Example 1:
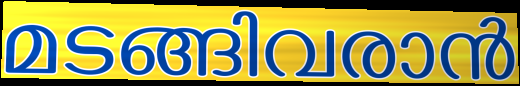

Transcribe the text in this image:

മടങ്ങിവരാൻ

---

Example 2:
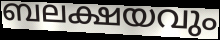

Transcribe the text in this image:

ബലക്ഷയവും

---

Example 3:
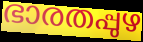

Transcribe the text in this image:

ഭാരതപ്പുഴ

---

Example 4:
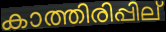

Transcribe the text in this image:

കാത്തിരിപ്പില്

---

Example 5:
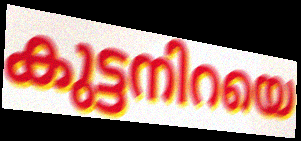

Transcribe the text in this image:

കുട്ടനിറയെ